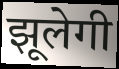
झूलेगी